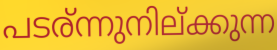
പടര്ന്നുനില്ക്കുന്ന